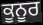
ਕੂਨੂਰ